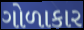
ગોળાકાર